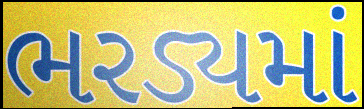
ભરડ્યમાં